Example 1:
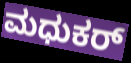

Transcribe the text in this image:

ಮಧುಕರ್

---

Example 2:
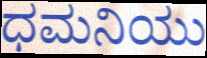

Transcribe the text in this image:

ಧಮನಿಯು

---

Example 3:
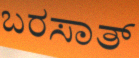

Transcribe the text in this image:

ಬರಸಾತ್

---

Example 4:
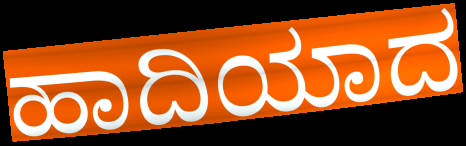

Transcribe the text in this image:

ಹಾದಿಯಾದ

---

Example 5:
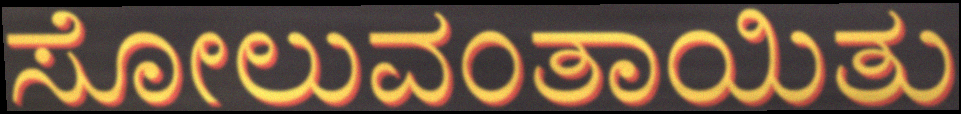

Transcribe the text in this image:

ಸೋಲುವಂತಾಯಿತು